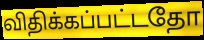
விதிக்கப்பட்டதோ